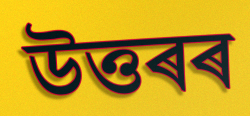
উত্তৰৰ